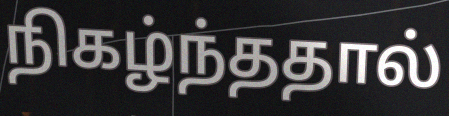
நிகழ்ந்ததால்